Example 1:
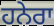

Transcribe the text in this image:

ਹਨੇਰਾ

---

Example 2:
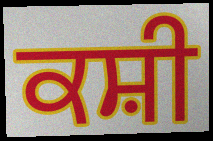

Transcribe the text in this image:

ਕਸ਼ੀ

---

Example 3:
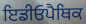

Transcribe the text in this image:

ਇਡੀਓਪੈਥਿਕ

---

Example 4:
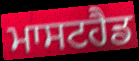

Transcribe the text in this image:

ਮਾਸਟਹੈਡ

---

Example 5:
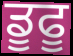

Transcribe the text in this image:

ਡੂਫੂ